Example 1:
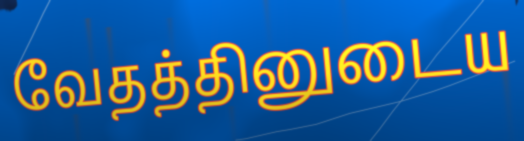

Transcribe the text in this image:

வேதத்தினுடைய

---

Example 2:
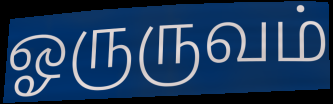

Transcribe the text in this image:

ஓருருவம்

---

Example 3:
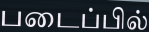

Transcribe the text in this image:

படைப்பில்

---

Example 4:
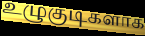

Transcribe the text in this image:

உழுகுடிகளாக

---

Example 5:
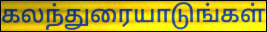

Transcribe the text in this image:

கலந்துரையாடுங்கள்